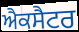
ਐਕਸੈਟਰ